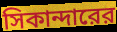
সিকান্দারের